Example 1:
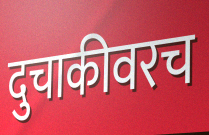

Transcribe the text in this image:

दुचाकीवरच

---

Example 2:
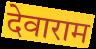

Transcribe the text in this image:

देवाराम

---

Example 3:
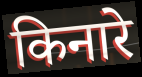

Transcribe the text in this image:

किनारे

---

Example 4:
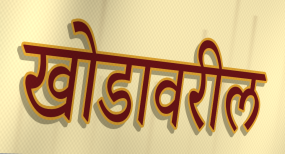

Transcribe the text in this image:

खोडावरील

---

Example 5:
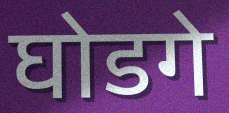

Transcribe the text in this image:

घोडगे